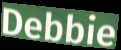
Debbie